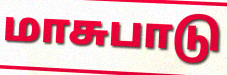
மாசுபாடு